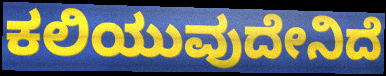
ಕಲಿಯುವುದೇನಿದೆ